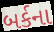
બર્કના